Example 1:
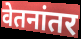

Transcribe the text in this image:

वेतनांतर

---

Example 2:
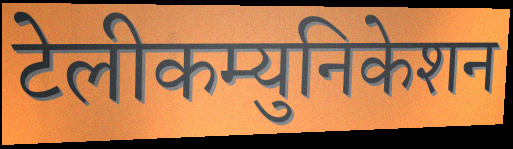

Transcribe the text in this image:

टेलीकम्युनिकेशन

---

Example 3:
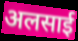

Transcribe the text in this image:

अलसाई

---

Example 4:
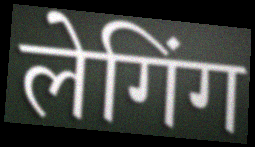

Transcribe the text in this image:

लेगिंग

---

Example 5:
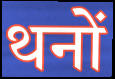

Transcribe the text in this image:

थनों